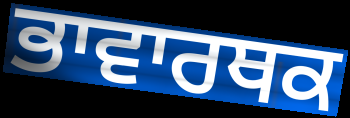
ਭਾਵਾਰਥਕ